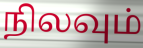
நிலவும்